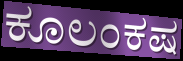
ಕೂಲಂಕಷ